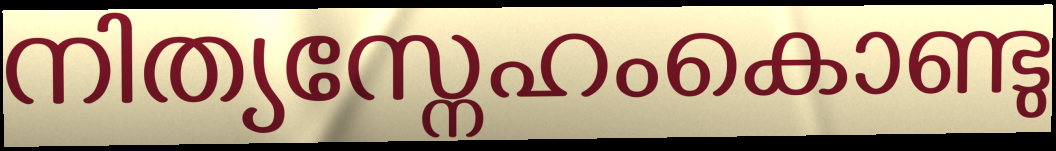
നിത്യസ്നേഹംകൊണ്ടു